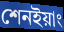
শেনইয়াং